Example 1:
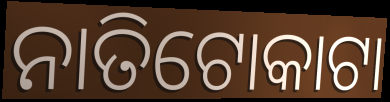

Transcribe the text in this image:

ନାତିଟୋକାଟା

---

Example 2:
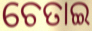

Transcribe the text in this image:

ଚେତାଇ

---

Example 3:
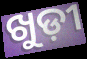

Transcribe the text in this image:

ଖୁଡ଼ୀ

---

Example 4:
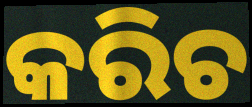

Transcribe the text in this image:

କରିଚ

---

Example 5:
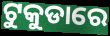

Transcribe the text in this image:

ଟୁକୁଡାରେ